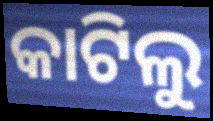
କାଟିଲୁ